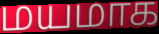
மயமாக